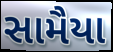
સામૈયા